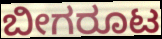
ಬೀಗರೂಟ